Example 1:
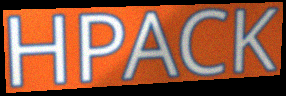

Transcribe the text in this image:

HPACK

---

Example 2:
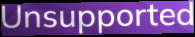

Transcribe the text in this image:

Unsupported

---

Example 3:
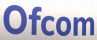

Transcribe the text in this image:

Ofcom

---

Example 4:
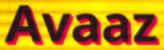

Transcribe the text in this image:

Avaaz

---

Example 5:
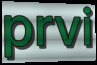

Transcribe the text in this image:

prvi